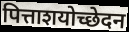
पित्ताशयोच्छेदन